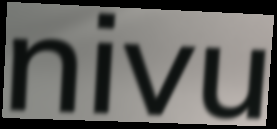
nivu